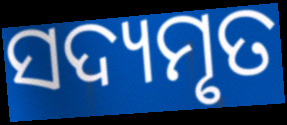
ସଦ୍ୟମୃତ